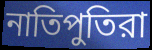
নাতিপুতিরা